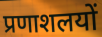
प्रणाशलयों